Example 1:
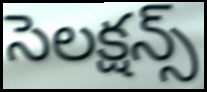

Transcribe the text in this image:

సెలక్షన్స్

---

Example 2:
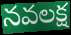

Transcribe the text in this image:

నవలక్ష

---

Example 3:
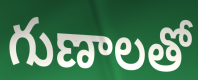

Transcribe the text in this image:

గుణాలతో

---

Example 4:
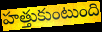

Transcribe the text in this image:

హత్తుకుంటుంది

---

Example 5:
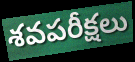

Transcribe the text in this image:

శవపరీక్షలు